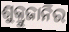
ଶୁକ୍ରୁଜାନିର